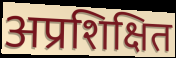
अप्रशिक्षित